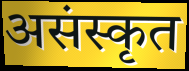
असंस्कृत